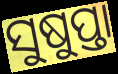
ସୁଷୁପ୍ତା